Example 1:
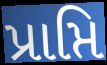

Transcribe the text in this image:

પ્રાપ્તિ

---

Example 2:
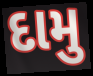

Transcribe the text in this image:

દામુ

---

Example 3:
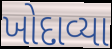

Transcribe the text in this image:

ખોદાવ્યા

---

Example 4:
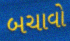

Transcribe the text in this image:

બચાવો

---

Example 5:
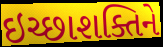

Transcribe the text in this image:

ઇચ્છાશક્તિને